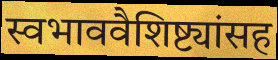
स्वभाववैशिष्ट्यांसह